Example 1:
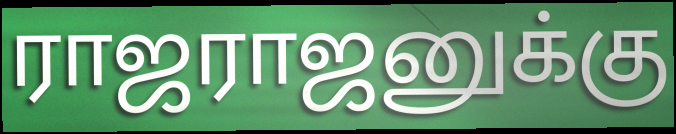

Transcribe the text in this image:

ராஜராஜனுக்கு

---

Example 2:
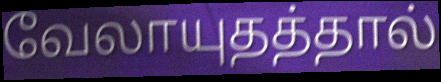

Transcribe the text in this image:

வேலாயுதத்தால்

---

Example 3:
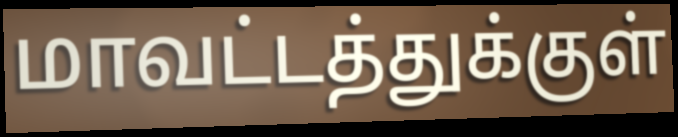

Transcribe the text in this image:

மாவட்டத்துக்குள்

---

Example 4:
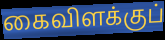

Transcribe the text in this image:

கைவிளக்குப்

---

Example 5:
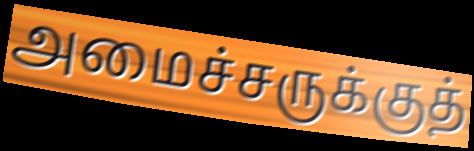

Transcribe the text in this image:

அமைச்சருக்குத்